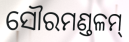
ସୌରମଣ୍ଡଳମ୍